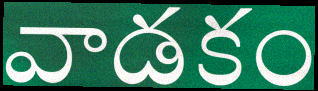
వాడకం